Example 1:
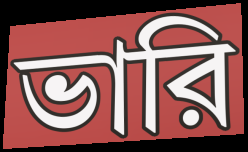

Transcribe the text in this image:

ভারি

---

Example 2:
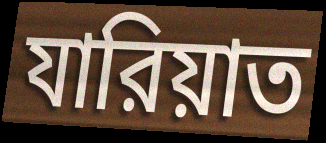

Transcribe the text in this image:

যারিয়াত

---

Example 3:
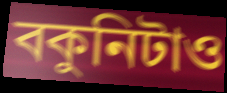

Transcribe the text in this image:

বকুনিটাও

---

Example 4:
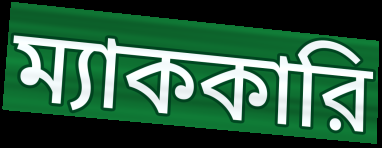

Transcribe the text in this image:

ম্যাককারি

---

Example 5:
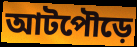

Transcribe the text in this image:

আটপৌড়ে